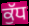
ਕੁੱਧ